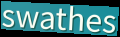
swathes